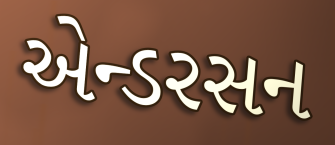
એન્ડરસન